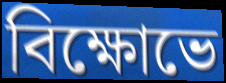
বিক্ষোভে